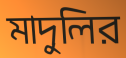
মাদুলির